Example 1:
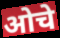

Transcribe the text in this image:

ओचे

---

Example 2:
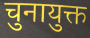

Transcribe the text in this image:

चुनायुक्त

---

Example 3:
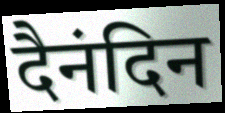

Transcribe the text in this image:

दैनंदिन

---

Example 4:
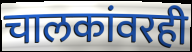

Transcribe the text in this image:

चालकांवरही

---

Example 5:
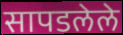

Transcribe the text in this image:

सापडलेले